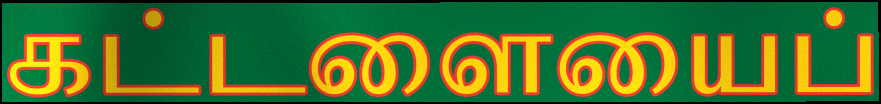
கட்டளையைப்